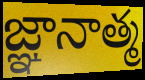
జ్ఞానాత్మ